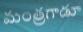
మంత్రగాడూ